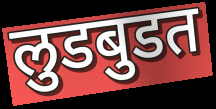
लुडबुडत